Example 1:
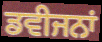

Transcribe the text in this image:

ਡਵੀਜਨਾਂ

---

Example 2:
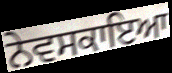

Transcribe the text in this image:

ਨੇਵਸਕਾਇਆ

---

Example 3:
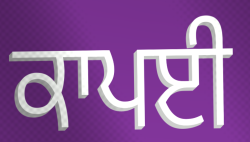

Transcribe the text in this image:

ਕਾਪਈ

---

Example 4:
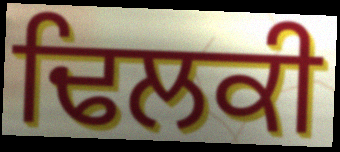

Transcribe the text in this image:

ਢਿਲਕੀ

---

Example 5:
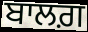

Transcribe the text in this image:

ਬਾਲਗ਼